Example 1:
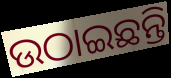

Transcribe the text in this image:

ଉଠାଇଛନ୍ତି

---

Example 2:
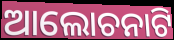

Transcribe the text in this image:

ଆଲୋଚନାଟି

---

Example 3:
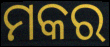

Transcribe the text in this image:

ମକର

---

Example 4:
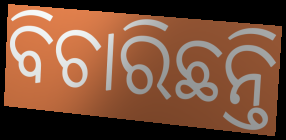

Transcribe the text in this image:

ବିଚାରିଛନ୍ତି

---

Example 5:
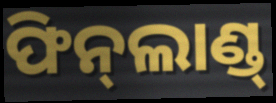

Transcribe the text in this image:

ଫିନ୍‌ଲାଣ୍ଡ୍